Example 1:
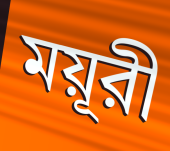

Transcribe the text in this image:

ময়ূরী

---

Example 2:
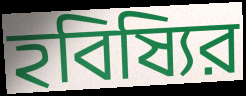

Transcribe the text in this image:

হবিষ্যির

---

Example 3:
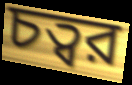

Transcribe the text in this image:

চত্বর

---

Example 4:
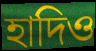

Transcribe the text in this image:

হাদিও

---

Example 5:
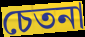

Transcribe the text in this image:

চেতনা